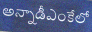
అన్నాడీఎంకేలో